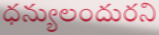
ధన్యులందురని